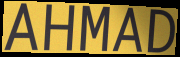
AHMAD